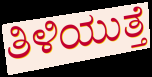
ತಿಳಿಯುತ್ತೆ